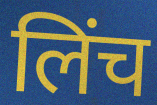
लिंच